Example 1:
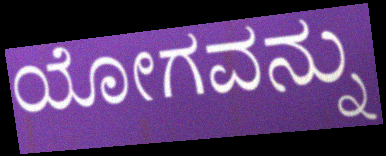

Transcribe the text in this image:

ಯೋಗವನ್ನು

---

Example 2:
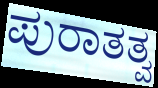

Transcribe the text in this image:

ಪುರಾತತ್ವ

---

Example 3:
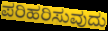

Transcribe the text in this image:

ಪರಿಹರಿಸುವುದು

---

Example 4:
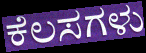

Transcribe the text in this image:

ಕೆಲಸಗಳು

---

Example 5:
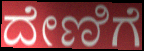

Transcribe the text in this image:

ದೇಣಿಗೆ